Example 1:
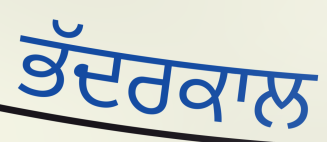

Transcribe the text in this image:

ਭੱਦਰਕਾਲ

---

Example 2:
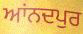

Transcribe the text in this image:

ਆਂਨਦਪੁਰ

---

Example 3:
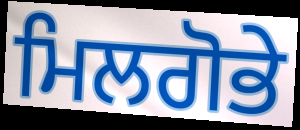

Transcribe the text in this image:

ਮਿਲਗੋਭੇ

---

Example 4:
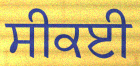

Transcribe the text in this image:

ਸੀਕਈ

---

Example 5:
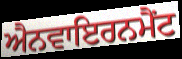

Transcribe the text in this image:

ਐਨਵਾਇਰਨਮੈਂਟ